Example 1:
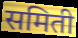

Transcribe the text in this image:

समिती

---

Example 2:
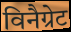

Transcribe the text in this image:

विनैग्रेट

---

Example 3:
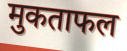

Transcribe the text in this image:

मुकताफल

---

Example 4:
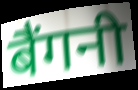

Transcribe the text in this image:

बैंगनी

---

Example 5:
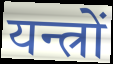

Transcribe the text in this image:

यन्त्रों